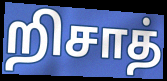
றிசாத்